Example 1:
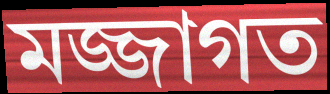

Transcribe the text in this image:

মজ্জাগত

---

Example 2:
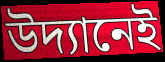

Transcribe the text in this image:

উদ্যানেই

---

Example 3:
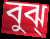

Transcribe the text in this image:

বুঝ্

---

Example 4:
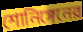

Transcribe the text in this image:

শোনিঙ্গেনের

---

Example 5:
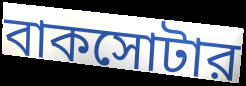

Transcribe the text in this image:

বাকসোটার